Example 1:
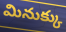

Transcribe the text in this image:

మినుక్కు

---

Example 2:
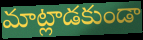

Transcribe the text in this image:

మాట్లాడకుండా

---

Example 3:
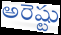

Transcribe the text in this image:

అరెష్టు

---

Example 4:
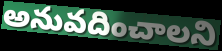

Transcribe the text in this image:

అనువదించాలని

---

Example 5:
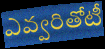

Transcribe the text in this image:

ఎవ్వరితోటీ